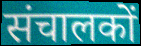
संचालकों